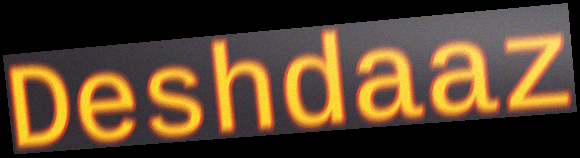
Deshdaaz